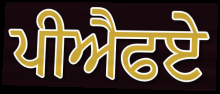
ਪੀਐਫਏ